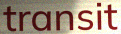
transit